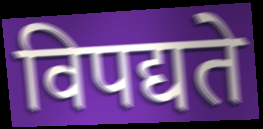
विपद्यते